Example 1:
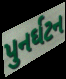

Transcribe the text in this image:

પુનર્ઘટન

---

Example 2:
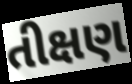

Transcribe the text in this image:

તીક્ષણ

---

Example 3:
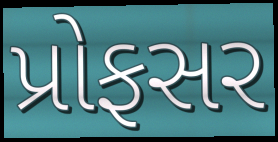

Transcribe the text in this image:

પ્રોફસર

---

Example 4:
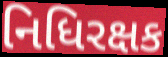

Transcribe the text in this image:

નિધિરક્ષક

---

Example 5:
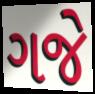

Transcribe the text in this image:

ગજે